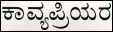
ಕಾವ್ಯಪ್ರಿಯರ